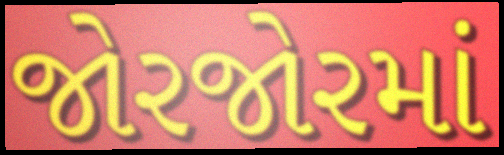
જોરજોરમાં